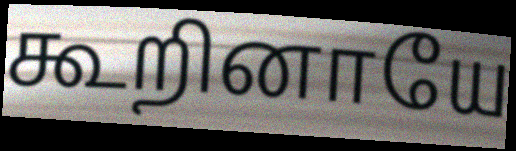
கூறினாயே